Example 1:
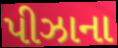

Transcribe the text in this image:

પીઝાના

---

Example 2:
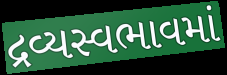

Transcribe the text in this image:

દ્રવ્યસ્વભાવમાં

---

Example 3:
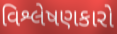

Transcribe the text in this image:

વિશ્લેષણકારો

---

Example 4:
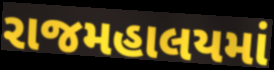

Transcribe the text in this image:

રાજમહાલયમાં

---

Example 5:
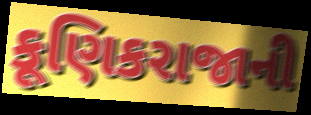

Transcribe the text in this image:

કૂણિકરાજાની